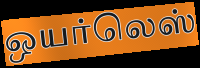
ஒயர்லெஸ்